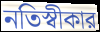
নতিস্বীকার